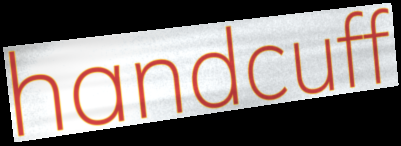
handcuff